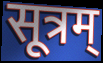
सूत्रम्